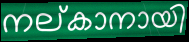
നല്കാനായി